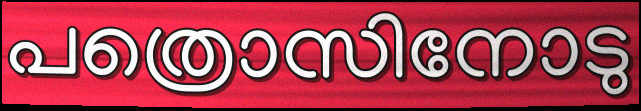
പത്രൊസിനോടു